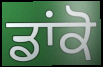
ਡਾਂਕੋ